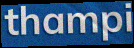
thampi